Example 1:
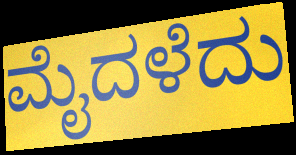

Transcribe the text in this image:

ಮೈದಳೆದು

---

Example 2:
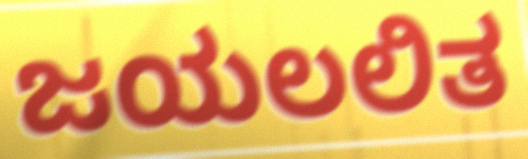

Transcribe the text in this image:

ಜಯಲಲಿತ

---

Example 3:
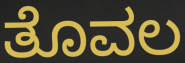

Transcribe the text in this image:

ತೊವಲ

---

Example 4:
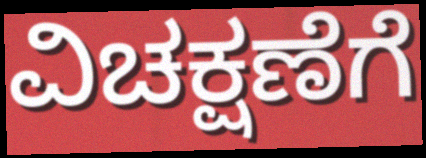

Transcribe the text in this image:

ವಿಚಕ್ಷಣೆಗೆ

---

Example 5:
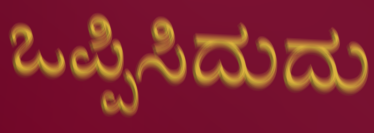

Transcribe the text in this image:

ಒಪ್ಪಿಸಿದುದು